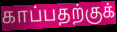
காப்பதற்குக்